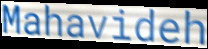
Mahavideh